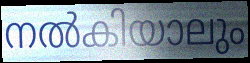
നൽകിയാലും